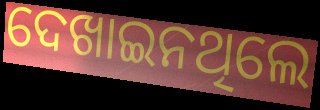
ଦେଖାଇନଥିଲେ